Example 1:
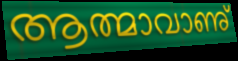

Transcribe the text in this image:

ആത്മാവാണു്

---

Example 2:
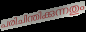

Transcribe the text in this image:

പരിചിന്തിക്കുന്നതും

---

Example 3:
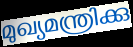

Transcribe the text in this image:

മുഖ്യമന്ത്രിക്കു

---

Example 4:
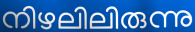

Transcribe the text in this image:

നിഴലിലിരുന്നു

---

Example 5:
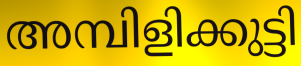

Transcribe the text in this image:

അമ്പിളിക്കുട്ടി